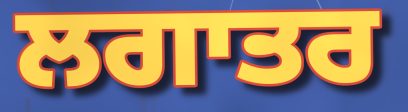
ਲਗਾਤਰ